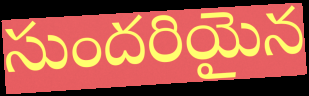
సుందరియైన